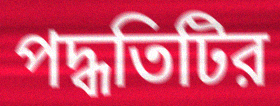
পদ্ধতিটির